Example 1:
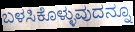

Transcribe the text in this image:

ಬಳಸಿಕೊಳ್ಳುವುದನ್ನೂ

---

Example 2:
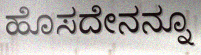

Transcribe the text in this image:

ಹೊಸದೇನನ್ನೂ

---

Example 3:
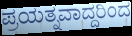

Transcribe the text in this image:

ಪ್ರಯತ್ನವಾದ್ದರಿಂದ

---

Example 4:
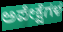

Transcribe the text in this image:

ಅಪೇಕ್ಷೆಗಳ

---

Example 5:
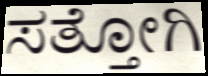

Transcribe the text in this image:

ಸತ್ತೋಗಿ